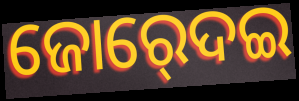
ଜୋର୍‍ଦେଇ